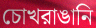
চোখরাঙানি